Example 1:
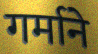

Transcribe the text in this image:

गर्माने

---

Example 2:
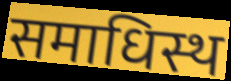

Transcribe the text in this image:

समाधिस्थ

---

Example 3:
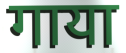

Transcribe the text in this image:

गाया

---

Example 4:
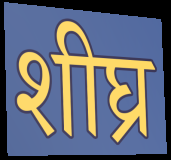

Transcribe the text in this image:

शीघ्र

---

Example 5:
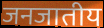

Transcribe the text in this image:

जनजातीय